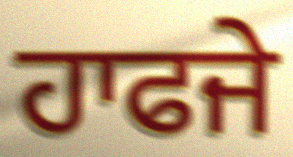
ਹਾਫਜੇ